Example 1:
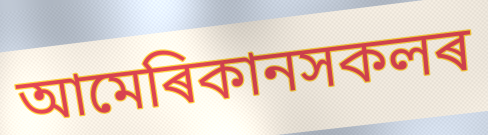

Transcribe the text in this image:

আমেৰিকানসকলৰ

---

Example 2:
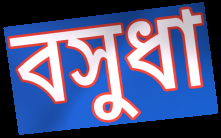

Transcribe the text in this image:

বসুধা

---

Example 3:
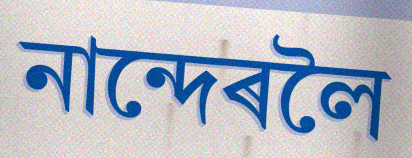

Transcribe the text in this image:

নান্দেৰলৈ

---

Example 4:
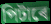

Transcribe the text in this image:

পিটাৰে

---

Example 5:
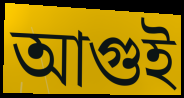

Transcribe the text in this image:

আগুই